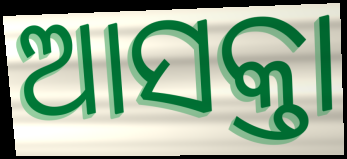
ଆସକ୍ତା